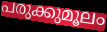
പരുക്കുമൂലം